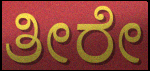
ತೀರೇ